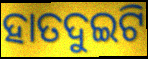
ହାତଦୁଇଟି